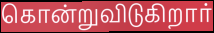
கொன்றுவிடுகிறார்